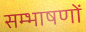
सम्भाषणों